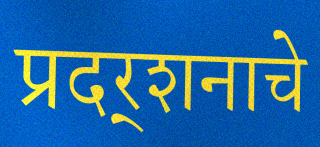
प्रदर्शनाचे